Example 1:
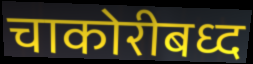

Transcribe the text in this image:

चाकोरीबध्द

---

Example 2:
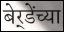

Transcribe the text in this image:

बेर्डेंच्या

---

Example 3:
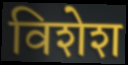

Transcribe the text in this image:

विशेश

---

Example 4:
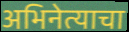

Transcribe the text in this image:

अभिनेत्याचा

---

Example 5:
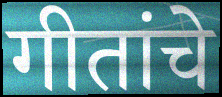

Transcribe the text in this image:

गीतांचे